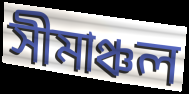
সীমাঞ্চল